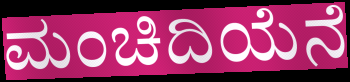
ಮಂಚಿದಿಯೆನೆ